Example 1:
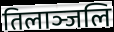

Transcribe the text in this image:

तिलाञ्जलि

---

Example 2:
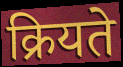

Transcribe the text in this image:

क्रियते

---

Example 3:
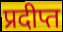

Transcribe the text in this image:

प्रदीप्त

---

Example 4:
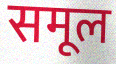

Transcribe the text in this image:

समूल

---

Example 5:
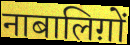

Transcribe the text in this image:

नाबालिग़ों